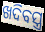
ଖଦିବସ୍ତ୍ର